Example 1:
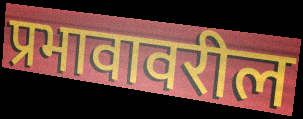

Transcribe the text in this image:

प्रभावावरील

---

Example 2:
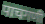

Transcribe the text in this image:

पाचगणी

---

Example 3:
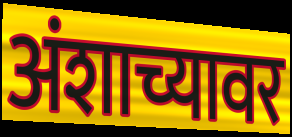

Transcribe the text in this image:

अंशाच्यावर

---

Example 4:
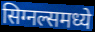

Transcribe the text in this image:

सिग्नल्समध्ये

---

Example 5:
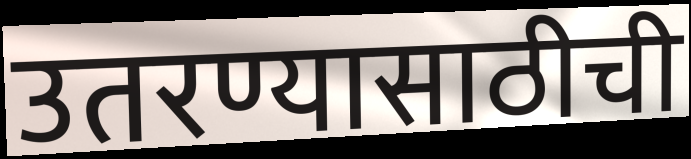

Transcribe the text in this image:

उतरण्यासाठीची